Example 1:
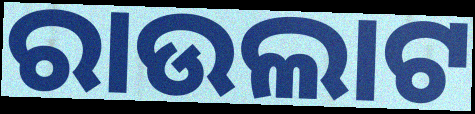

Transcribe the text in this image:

ରାଉଲାଟ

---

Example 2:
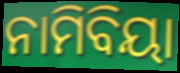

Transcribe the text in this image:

ନାମିବିୟା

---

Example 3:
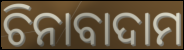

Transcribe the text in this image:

ଚିନାବାଦାମ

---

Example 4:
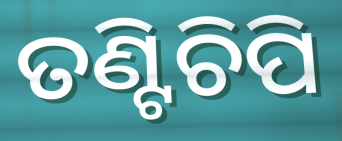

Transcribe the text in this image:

ତଣ୍ଟିଚିପି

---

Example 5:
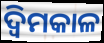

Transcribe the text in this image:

ଦ୍ବିମକାଳ